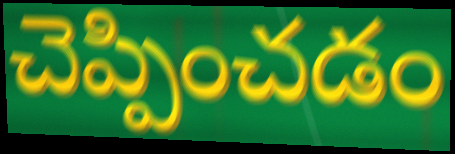
చెప్పించడం